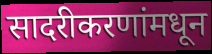
सादरीकरणांमधून